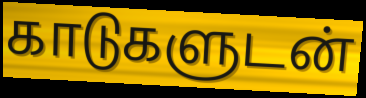
காடுகளுடன்